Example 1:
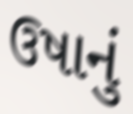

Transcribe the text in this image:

ઉષાનું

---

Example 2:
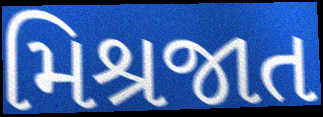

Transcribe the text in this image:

મિશ્રજાત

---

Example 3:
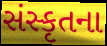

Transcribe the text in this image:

સંસ્‍કૃતના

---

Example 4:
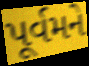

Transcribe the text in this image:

પૂર્વમને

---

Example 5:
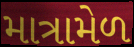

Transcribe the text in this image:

માત્રામેળ